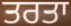
ਤਰਤਾ